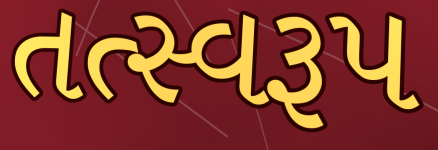
તત્સ્વરૂપ